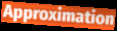
Approximation